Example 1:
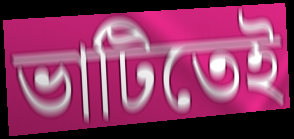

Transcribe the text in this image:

ভাটিতেই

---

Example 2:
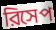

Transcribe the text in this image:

রিসেপ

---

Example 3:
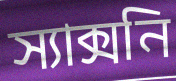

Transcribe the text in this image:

স্যাক্সনি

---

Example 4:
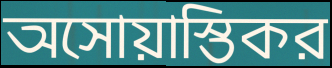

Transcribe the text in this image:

অসোয়াস্তিকর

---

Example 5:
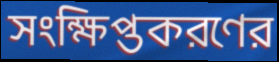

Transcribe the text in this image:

সংক্ষিপ্তকরণের